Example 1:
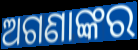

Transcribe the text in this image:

ଅଗଣାଙ୍କର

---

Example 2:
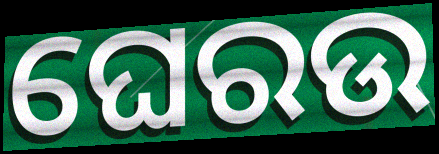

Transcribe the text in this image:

ଘେରଉ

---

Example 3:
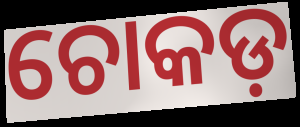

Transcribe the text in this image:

ଚୋକଡ଼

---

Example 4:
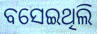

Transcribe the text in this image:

ବସେଇଥିଲି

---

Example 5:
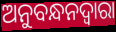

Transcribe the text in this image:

ଅନୁବନ୍ଧନଦ୍ୱାରା